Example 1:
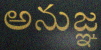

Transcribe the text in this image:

అనుజ్ఞ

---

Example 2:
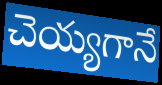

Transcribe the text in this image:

చెయ్యగానే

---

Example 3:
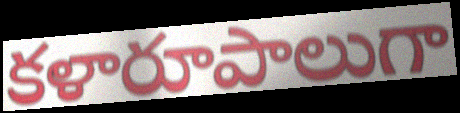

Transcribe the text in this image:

కళారూపాలుగా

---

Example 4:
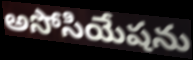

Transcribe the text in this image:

అసోసియేషను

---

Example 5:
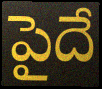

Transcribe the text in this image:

పైదే